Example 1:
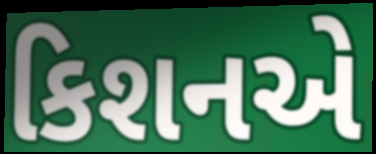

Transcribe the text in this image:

કિશનએ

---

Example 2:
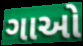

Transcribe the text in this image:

ગાઓ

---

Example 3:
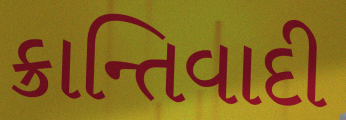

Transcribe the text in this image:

ક્રાન્તિવાદી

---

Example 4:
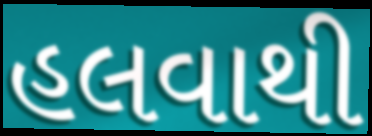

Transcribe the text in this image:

હલવાથી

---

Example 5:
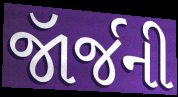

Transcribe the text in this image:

જૉર્જની